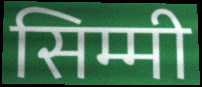
सिम्मी